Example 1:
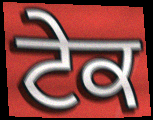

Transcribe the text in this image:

ਟੇਕ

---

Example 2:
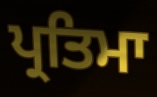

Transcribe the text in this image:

ਪ੍ਰਤਿਮਾ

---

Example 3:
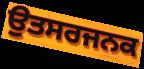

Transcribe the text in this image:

ਉਤਸਰਜਨਕ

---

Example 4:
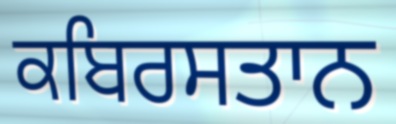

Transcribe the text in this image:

ਕਬਿਰਸਤਾਨ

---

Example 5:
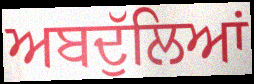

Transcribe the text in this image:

ਅਬਦੁੱਲਿਆਂ